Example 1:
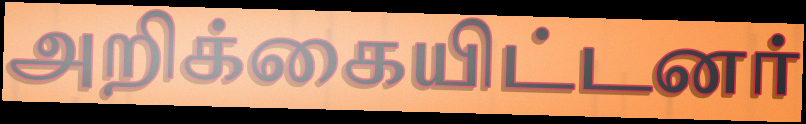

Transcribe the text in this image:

அறிக்கையிட்டனர்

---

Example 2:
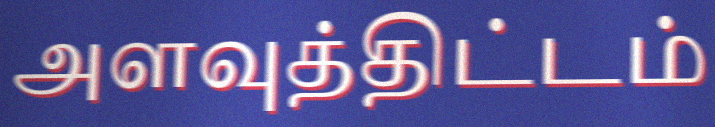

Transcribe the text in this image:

அளவுத்திட்டம்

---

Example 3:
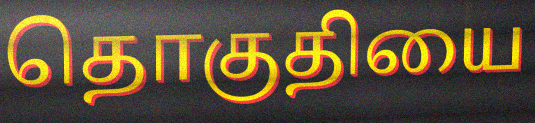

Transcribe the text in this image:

தொகுதியை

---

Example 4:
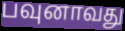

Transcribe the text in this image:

பவுனாவது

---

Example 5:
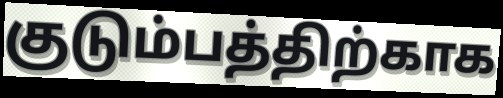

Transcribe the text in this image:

குடும்பத்திற்காக